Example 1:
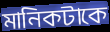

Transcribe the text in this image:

মানিকটাকে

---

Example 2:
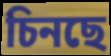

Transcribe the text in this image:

চিনছে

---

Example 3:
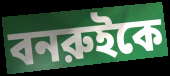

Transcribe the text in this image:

বনরুইকে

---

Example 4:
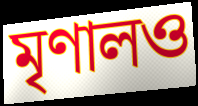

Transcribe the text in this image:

মৃণালও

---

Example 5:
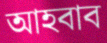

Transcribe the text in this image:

আহবাব